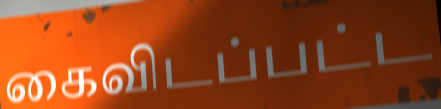
கைவிடப்பட்ட